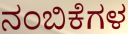
ನಂಬಿಕೆಗಳ